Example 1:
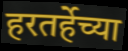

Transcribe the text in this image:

हरतर्हेच्या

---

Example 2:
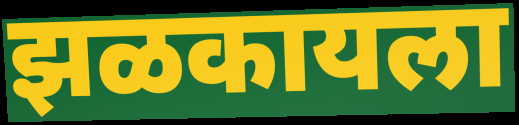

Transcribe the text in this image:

झळकायला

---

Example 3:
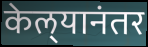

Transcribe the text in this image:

केल्यानंतर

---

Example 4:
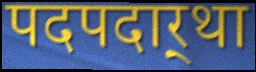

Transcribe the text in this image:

पदपदार्था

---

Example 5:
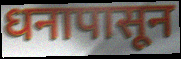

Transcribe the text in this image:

धनापासून